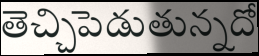
తెచ్చిపెడుతున్నదో